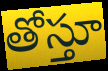
తోస్తూ